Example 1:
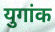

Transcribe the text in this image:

युगांक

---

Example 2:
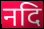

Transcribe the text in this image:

नदि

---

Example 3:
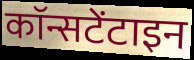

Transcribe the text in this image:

कॉन्सटेंटाइन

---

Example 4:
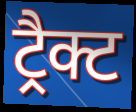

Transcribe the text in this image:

ट्रैक्ट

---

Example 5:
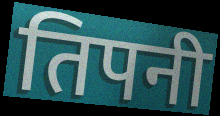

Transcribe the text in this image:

तिपनी